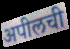
अपीलची